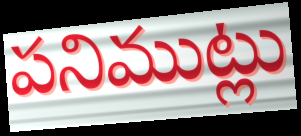
పనిముట్లు